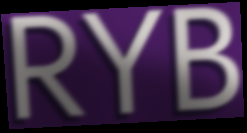
RYB